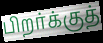
பிறர்க்குத்